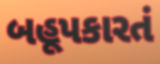
બહૂપકારતં